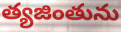
త్యజింతును